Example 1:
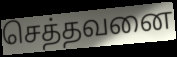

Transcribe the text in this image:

செத்தவனை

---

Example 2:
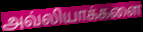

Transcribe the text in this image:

அவ்லியாக்களை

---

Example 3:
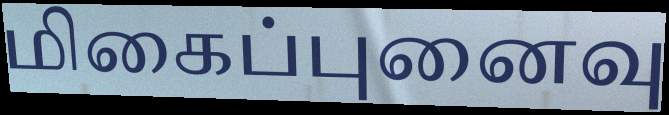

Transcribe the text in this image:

மிகைப்புனைவு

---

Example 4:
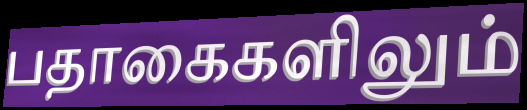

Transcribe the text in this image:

பதாகைகளிலும்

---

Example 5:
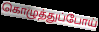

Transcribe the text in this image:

கொழுத்துப்போய்